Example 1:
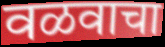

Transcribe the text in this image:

वळवाचा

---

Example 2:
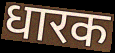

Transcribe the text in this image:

धारक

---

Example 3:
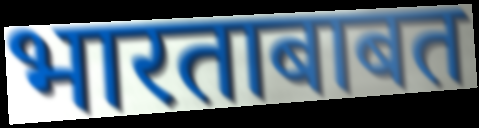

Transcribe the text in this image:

भारताबाबत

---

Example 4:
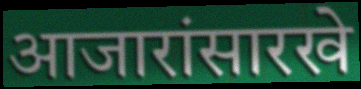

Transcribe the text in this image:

आजारांसारखे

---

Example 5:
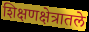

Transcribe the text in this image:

शिक्षणक्षेत्रातले